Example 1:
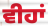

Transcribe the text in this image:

ਵੀਹਾਂ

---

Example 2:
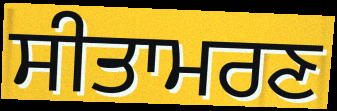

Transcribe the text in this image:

ਸੀਤਾਮਰਣ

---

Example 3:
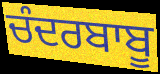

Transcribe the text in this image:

ਚੰਦਰਬਾਬੂ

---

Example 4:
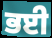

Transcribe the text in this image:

ਭਈ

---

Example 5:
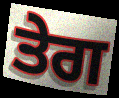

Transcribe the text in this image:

ਤੇਗ